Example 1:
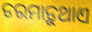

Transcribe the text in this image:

ଡରମାଡ଼ୁଥାଏ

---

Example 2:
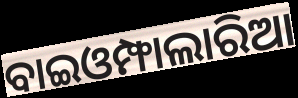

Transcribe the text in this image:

ବାଇଓମ୍ଫାଲାରିଆ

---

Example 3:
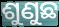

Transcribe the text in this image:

ଶୁଣୁଛ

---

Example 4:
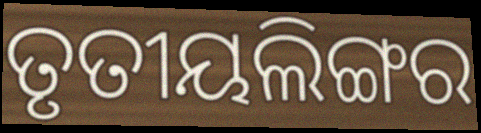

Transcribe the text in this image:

ତୃତୀୟଲିଙ୍ଗର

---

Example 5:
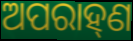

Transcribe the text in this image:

ଅପରାହ୍‍ଣ